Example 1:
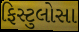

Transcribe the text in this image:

ફિસ્ટુલોસા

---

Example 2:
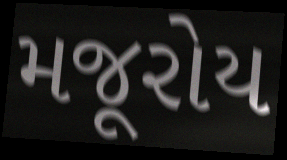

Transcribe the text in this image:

મજૂરોય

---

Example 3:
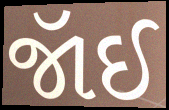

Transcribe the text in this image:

જૉઈ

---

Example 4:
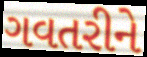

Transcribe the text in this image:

ગવતરીને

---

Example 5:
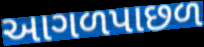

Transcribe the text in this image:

આગળપાછળ